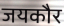
जयकौर